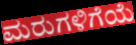
ಮರುಗಳಿಗೆಯೆ